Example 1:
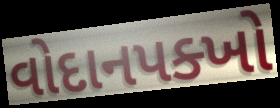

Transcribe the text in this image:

વોદાનપક્ખો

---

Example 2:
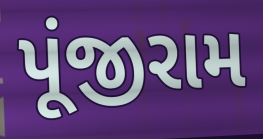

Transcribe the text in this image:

પૂંજીરામ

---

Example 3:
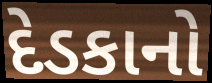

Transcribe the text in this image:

દેડકાનો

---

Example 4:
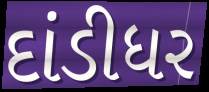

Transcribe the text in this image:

દાંડીધર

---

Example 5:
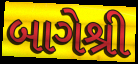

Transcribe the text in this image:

બાગેશ્રી